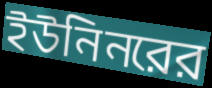
ইউনিনরের